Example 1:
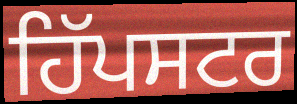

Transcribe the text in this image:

ਹਿੱਪਸਟਰ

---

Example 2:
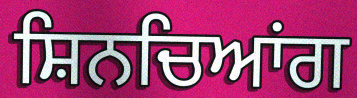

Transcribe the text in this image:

ਸ਼ਿਨਚਿਆਂਗ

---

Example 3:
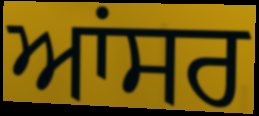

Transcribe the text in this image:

ਆਂਸਰ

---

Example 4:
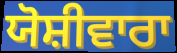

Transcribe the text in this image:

ਯੋਸ਼ੀਵਾਰਾ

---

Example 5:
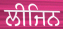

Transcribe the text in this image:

ਲੀਜਿਨ